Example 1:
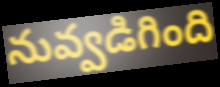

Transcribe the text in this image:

నువ్వడిగింది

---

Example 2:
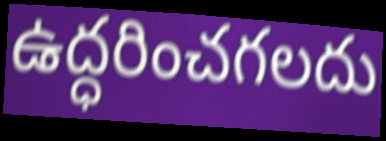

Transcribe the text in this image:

ఉద్ధరించగలదు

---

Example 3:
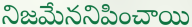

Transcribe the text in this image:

నిజమేననిపించాయి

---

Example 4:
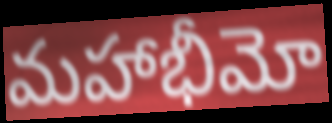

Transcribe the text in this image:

మహాభీమో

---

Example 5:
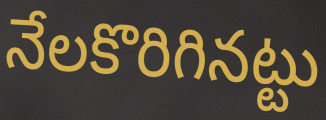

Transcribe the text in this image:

నేలకొరిగినట్టు